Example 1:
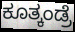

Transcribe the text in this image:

ಕೂತ್ಕಂಡ್ರೆ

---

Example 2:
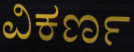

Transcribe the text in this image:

ವಿಕರ್ಣ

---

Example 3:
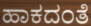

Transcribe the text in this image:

ಹಾಕದಂತೆ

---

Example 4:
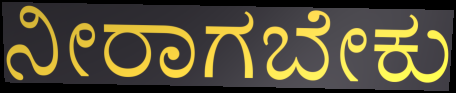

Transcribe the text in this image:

ನೀರಾಗಬೇಕು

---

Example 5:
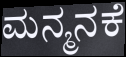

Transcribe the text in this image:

ಮನ್ಮನಕೆ